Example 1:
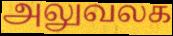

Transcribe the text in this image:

அலுவலக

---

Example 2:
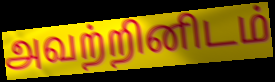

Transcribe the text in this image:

அவற்றினிடம்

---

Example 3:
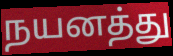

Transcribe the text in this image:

நயனத்து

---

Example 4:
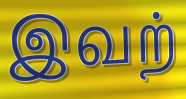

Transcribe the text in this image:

இவற்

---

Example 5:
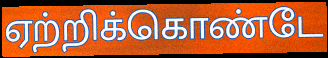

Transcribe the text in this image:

ஏற்றிக்கொண்டே